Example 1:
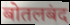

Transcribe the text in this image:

बोतलबंद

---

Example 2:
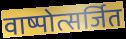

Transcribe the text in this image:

वाष्पोत्सर्जित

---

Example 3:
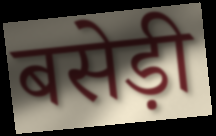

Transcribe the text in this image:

बसेड़ी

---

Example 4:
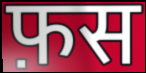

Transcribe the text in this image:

फ़स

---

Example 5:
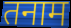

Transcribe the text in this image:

तनाम